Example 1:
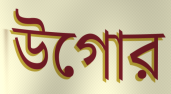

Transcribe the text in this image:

উগোর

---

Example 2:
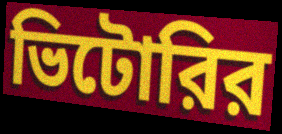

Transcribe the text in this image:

ভিটোরির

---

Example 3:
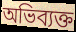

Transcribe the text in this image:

অভিব্যক্ত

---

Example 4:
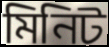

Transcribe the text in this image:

মিনিট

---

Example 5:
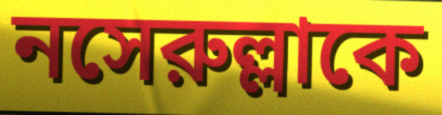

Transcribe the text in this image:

নসেরুল্লাকে